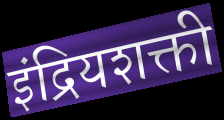
इंद्रियशक्ती